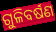
ଗୁଳିବର୍ଷଣ